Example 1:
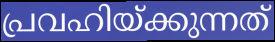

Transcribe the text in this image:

പ്രവഹിയ്ക്കുന്നത്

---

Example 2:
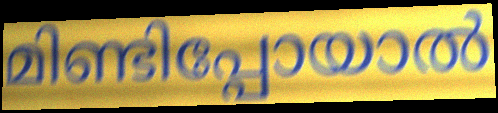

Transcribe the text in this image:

മിണ്ടിപ്പോയാൽ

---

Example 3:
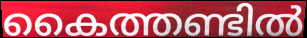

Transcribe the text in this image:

കൈത്തണ്ടിൽ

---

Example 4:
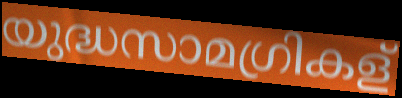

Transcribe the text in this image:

യുദ്ധസാമഗ്രികള്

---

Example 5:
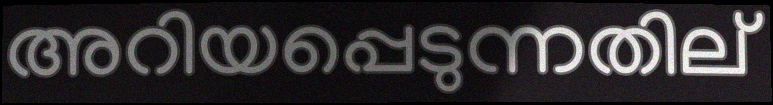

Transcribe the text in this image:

അറിയപ്പെടുന്നതില്